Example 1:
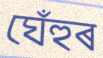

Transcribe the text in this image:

ঘেঁহুৰ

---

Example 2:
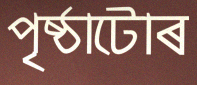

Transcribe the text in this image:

পৃষ্ঠাটোৰ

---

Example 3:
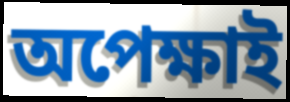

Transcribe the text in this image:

অপেক্ষাই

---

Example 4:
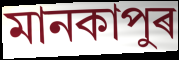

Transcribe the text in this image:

মানকাপুৰ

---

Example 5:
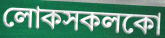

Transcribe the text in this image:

লোকসকলকো